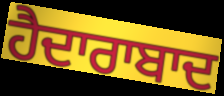
ਹੈਦਾਰਾਬਾਦ